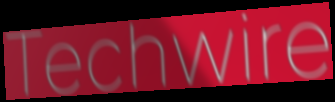
Techwire